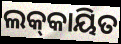
ଲକ୍‌କାୟିତ